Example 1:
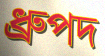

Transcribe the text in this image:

ধ্ৰুপদ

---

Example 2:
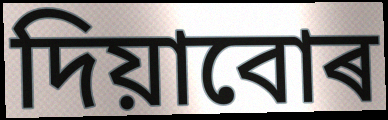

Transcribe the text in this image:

দিয়াবোৰ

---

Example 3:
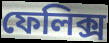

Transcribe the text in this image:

ফেলিক্স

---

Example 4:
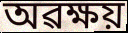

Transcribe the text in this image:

অৱক্ষয়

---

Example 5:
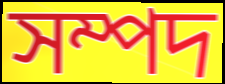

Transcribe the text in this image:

সম্পদ